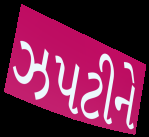
ઝપટીને